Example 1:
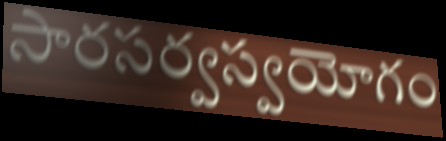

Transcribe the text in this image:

సారసర్వస్వయోగం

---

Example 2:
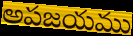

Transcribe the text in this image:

అపజయము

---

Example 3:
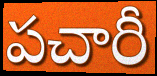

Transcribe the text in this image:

పచారీ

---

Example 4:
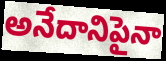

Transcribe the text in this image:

అనేదానిపైనా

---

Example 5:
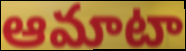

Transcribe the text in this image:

ఆమాటా